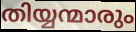
തിയ്യന്മാരും